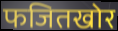
फजितखोर